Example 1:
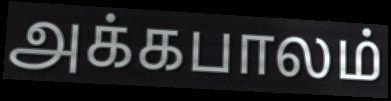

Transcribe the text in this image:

அக்கபாலம்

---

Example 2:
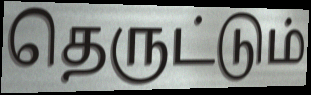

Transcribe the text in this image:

தெருட்டும்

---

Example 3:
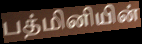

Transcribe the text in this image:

பத்மினியின்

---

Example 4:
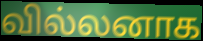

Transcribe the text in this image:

வில்லனாக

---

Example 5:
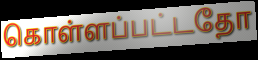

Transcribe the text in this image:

கொள்ளப்பட்டதோ